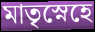
মাতৃস্নেহে